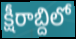
క్షీరాబ్దిలో